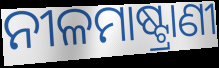
ନୀଳମାଷ୍ଟ୍ରାଣୀ